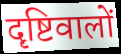
दृष्टिवालों